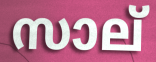
സാല്